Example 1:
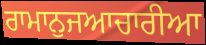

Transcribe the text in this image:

ਰਾਮਾਨੁਜਆਚਾਰੀਆ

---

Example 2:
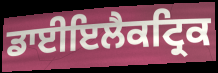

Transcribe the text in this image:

ਡਾਈਇਲੈਕਟ੍ਰਿਕ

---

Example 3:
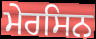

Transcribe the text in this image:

ਮੇਰਸਿਨ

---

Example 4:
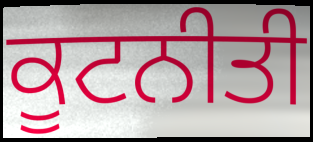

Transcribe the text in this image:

ਕੂਟਨੀਤੀ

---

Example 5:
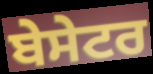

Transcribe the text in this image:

ਬੇਸੇਟਰ